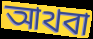
আথবা